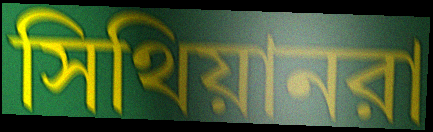
সিথিয়ানরা